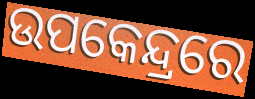
ଉପକେନ୍ଦ୍ରରେ